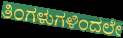
ತಿಂಗಳುಗಳಿಂದಲೇ